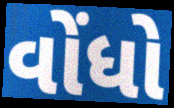
વોંધો